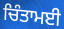
ਚਿੰਤਾਮਈ